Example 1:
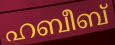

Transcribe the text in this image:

ഹബീബ്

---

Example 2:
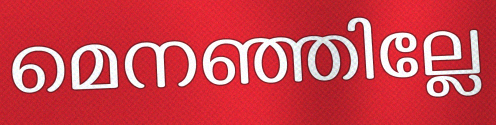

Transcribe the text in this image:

മെനഞ്ഞില്ലേ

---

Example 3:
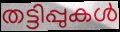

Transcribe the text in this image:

തട്ടിപ്പുകൾ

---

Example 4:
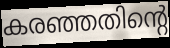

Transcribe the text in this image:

കരഞ്ഞതിന്റെ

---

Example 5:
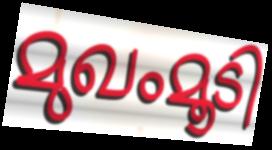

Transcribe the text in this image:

മുഖംമൂടി